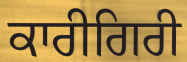
ਕਾਰੀਗਿਰੀ